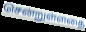
சென்றுள்ளதை